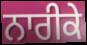
ਨਾਰੀਕੇ